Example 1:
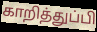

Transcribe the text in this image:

காறித்துப்பி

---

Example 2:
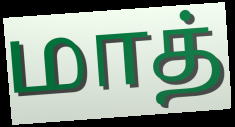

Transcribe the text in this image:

மாத்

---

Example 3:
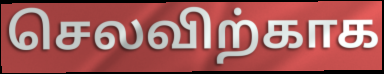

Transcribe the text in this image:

செலவிற்காக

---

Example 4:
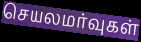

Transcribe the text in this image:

செயலமர்வுகள்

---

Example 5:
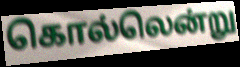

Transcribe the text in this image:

கொல்லென்று